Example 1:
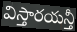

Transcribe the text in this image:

విస్తారయన్తీ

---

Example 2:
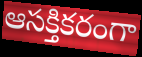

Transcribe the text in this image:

ఆసక్తికరంగా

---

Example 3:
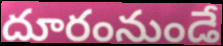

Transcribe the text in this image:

దూరంనుండే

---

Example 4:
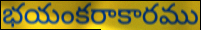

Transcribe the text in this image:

భయంకరాకారము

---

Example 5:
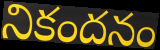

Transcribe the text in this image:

నికందనం